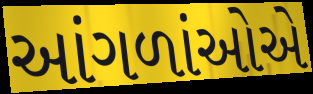
આંગળાંઓએ